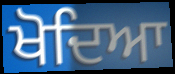
ਖੋਦਿਆ